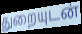
துறையுடன்